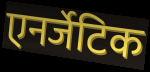
एनर्जेटिक